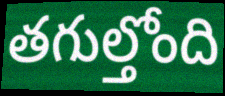
తగుల్తోంది